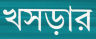
খসড়ার